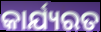
କାର୍ଯ୍ୟରତ